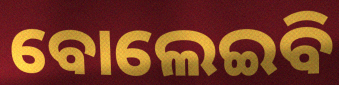
ବୋଲେଇବି